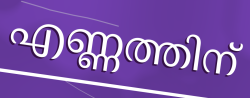
എണ്ണത്തിന്